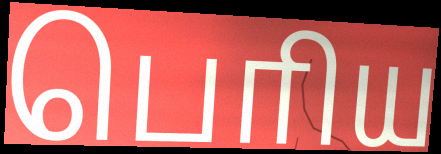
பெரிய